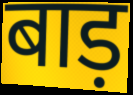
बाड़